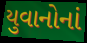
યુવાનોનાં